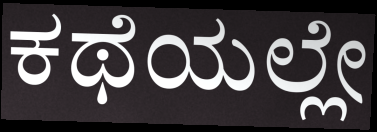
ಕಥೆಯಲ್ಲೇ